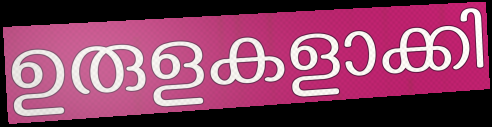
ഉരുളകളാക്കി